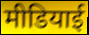
मीडियाई